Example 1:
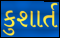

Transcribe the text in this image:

કુશાર્ત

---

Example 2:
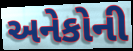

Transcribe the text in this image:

અનેકોની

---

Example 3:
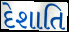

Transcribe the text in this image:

દેશાતિ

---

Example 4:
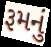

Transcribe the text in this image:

રૂમનું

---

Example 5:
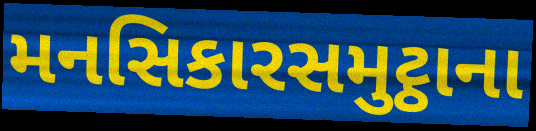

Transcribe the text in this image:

મનસિકારસમુટ્ઠાના